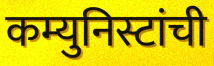
कम्युनिस्टांची